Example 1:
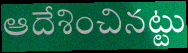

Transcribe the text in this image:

ఆదేశించినట్టు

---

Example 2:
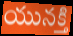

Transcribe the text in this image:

యునక్తి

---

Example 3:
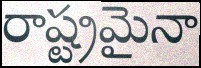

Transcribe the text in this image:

రాష్ట్రమైనా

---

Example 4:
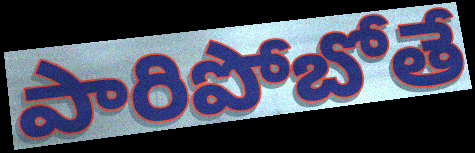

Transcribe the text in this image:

పారిపోబోతే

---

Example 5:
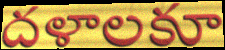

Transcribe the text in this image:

దళాలకూ